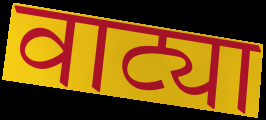
वाट्या